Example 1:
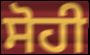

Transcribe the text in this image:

ਸੋਹੀ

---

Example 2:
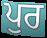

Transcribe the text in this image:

ਪੁਰ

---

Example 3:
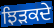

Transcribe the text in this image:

ਝਿੜਕਦੇ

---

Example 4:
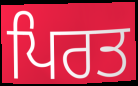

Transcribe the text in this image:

ਪਿਰਤ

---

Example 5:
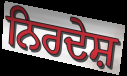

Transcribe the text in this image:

ਨਿਰਦੇਸ਼